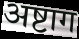
अष्टाग